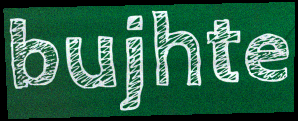
bujhte